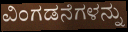
ವಿಂಗಡನೆಗಳನ್ನು